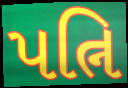
પત્નિ